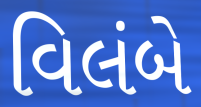
વિલંબે